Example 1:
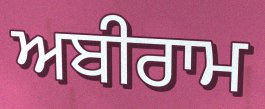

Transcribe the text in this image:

ਅਬੀਰਾਮ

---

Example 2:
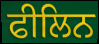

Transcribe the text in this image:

ਫੀਲਿਨ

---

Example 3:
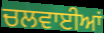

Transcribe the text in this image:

ਚਲਵਾਈਆਂ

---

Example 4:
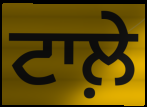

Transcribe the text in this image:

ਟਾਲ਼ੇ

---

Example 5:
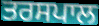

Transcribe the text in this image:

ਤਰਸਪਾਲ